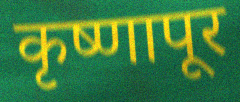
कृष्णापूर